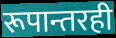
रूपान्तरही